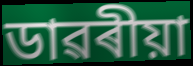
ডাৱৰীয়া